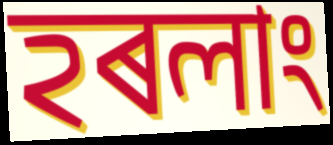
হৰলাং